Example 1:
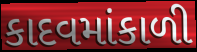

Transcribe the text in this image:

કાદવમાંકાળી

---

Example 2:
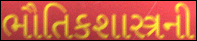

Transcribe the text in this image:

ભૌતિકશાસ્ત્રની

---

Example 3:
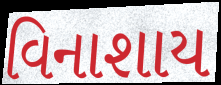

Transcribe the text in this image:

વિનાશાય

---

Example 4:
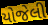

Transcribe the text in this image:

યોજેલી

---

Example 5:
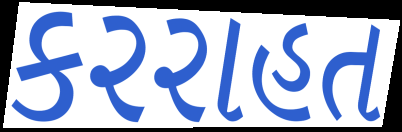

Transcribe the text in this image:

કરરાહત